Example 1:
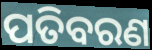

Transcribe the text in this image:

ପତିବରଣ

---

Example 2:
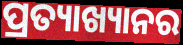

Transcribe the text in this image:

ପ୍ରତ୍ୟାଖ୍ୟାନର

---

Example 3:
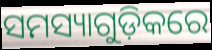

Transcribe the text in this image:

ସମସ୍ୟାଗୁଡ଼ିକରେ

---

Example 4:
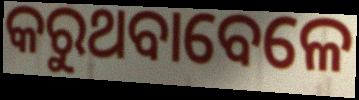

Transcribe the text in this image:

କରୁଥବାବେଳେ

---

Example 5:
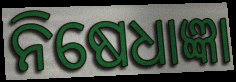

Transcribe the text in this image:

ନିଷେଧାଜ୍ଞା